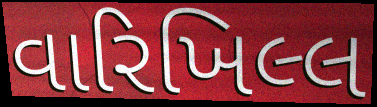
વારિખિલ્લ